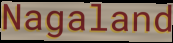
Nagaland